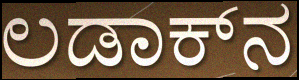
ಲಡಾಕ್‌ನ